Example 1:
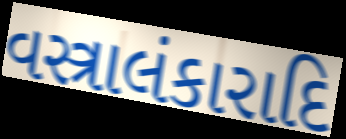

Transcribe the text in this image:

વસ્ત્રાલંકારાદિ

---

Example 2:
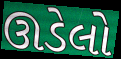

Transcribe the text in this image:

ઊડેલો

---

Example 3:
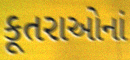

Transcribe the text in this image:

કૂતરાઓનાં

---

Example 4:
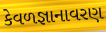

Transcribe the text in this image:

કેવળજ્ઞાનાવરણ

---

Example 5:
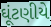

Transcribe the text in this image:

ઘૂંટણીયે